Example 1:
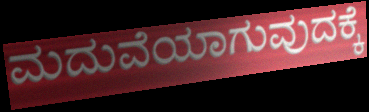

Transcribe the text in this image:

ಮದುವೆಯಾಗುವುದಕ್ಕೆ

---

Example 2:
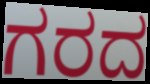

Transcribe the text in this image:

ಗರದ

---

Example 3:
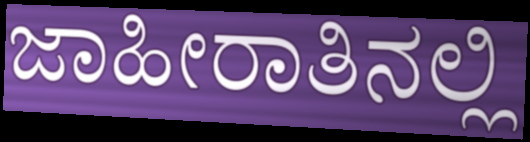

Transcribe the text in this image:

ಜಾಹೀರಾತಿನಲ್ಲಿ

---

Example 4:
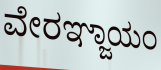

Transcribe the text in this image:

ವೇರಞ್ಜಾಯಂ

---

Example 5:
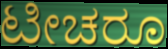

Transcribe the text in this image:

ಟೀಚರೂ